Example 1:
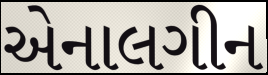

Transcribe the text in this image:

એનાલગીન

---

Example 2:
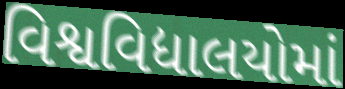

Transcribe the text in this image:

વિશ્વવિદ્યાલયોમાં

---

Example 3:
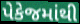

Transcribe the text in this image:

પેકેજમાંથી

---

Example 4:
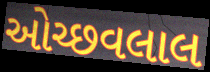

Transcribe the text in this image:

ઓચ્છવલાલ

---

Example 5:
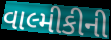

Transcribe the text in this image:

વાલ્મીકીની